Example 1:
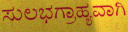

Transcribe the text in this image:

ಸುಲಭಗ್ರಾಹ್ಯವಾಗಿ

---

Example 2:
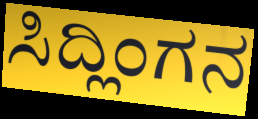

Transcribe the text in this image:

ಸಿದ್ಲಿಂಗನ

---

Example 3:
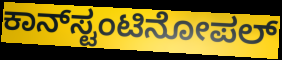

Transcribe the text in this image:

ಕಾನ್‍ಸ್ಟಂಟಿನೋಪಲ್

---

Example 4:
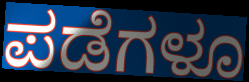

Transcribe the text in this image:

ಪಡೆಗಳೂ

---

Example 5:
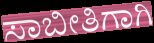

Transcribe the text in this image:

ಸಾಬೀತಿಗಾಗಿ